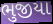
ભુજીયા